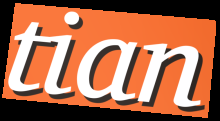
tian